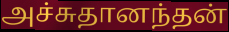
அச்சுதானந்தன்